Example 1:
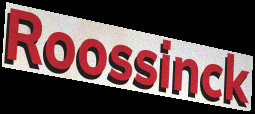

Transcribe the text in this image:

Roossinck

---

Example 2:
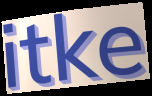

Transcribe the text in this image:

itke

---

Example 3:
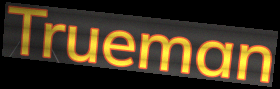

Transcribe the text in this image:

Trueman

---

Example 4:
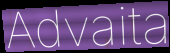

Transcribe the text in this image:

Advaita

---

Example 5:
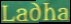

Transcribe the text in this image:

Ladha